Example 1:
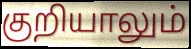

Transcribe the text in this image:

குறியாலும்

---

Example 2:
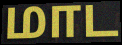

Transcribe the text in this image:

மாட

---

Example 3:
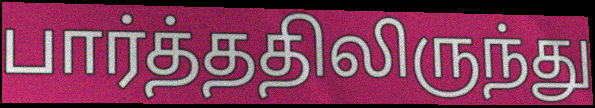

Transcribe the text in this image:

பார்த்ததிலிருந்து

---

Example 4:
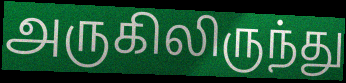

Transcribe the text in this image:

அருகிலிருந்து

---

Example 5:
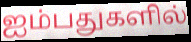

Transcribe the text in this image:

ஐம்பதுகளில்